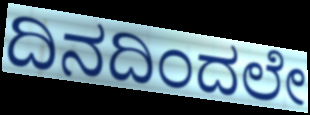
ದಿನದಿಂದಲೇ